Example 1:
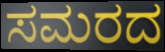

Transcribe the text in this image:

ಸಮರದ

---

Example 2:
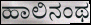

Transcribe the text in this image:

ಹಾಲಿನಂಥ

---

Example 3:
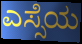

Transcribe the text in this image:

ಎಸ್ಸೆಯ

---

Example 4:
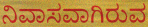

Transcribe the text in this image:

ನಿವಾಸವಾಗಿರುವ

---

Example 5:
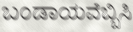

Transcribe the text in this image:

ಬಂಡಾಯವೆಬ್ಬಿಸಿ